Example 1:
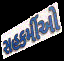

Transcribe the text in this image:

સહકર્મીઓ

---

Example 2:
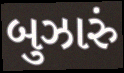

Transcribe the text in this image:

બુઝારું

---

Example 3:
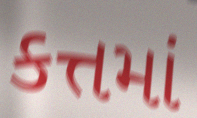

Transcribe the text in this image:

કત્તમાં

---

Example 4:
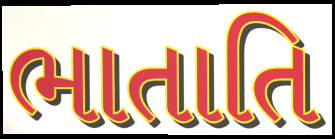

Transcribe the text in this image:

ભાતાતિ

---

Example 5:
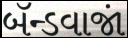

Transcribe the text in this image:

બૅન્ડવાજાં